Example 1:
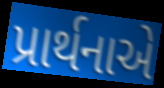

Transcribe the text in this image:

પ્રાર્થનાએ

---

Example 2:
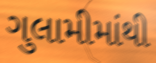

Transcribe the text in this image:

ગુલામીમાંથી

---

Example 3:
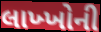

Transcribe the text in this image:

લાખ્ખોની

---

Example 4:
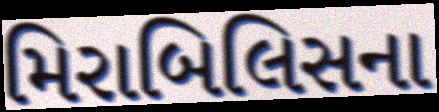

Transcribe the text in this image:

મિરાબિલિસના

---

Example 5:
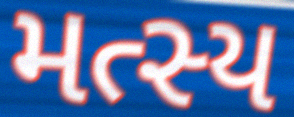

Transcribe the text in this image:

મત્સ્ય